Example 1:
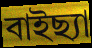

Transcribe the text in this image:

বাইছ্যা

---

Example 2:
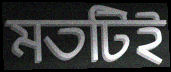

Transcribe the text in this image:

মতটিই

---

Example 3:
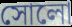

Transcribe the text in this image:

সোলো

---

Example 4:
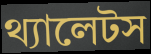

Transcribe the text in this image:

থ্যালেটস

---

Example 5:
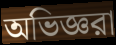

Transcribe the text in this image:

অভিজ্ঞরা